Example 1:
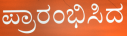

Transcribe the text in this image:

ಪ್ರಾರಂಭಿಸಿದ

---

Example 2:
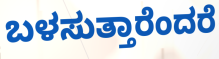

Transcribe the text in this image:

ಬಳಸುತ್ತಾರೆಂದರೆ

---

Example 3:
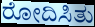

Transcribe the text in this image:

ರೋದಿಸಿತು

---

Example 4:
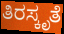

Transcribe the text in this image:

ತಿರಸ್ಕೃತೆ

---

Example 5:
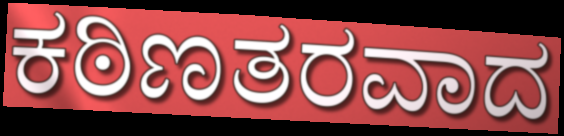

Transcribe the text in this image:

ಕಠಿಣತರವಾದ